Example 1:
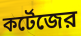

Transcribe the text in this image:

কর্টেজের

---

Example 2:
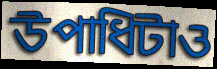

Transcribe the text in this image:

উপাধিটাও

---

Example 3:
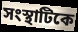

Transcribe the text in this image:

সংস্থাটিকে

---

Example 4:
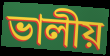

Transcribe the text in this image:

ভালীয়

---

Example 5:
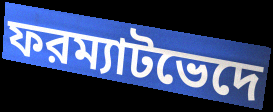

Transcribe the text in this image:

ফরম্যাটভেদে